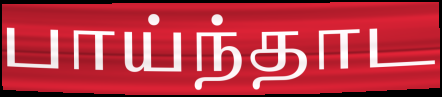
பாய்ந்தாட